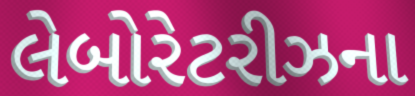
લેબોરેટરીઝના